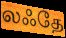
லஃதே